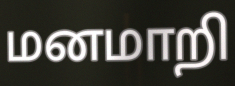
மனமாறி